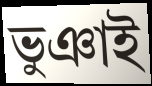
ভুঞাই